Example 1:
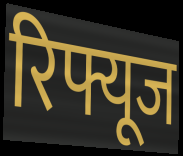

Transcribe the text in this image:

रिफ्यूज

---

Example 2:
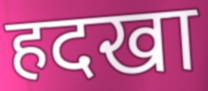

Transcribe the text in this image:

हदखा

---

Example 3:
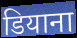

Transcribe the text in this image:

डियाना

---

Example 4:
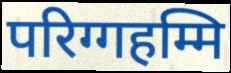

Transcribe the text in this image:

परिग्गहम्मि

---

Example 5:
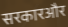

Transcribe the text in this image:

सरकारऔर